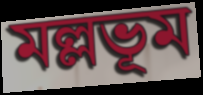
মল্লভূম